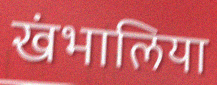
खंभालिया